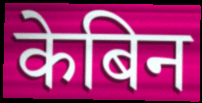
केबिन